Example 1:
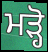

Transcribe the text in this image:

ਮੜ੍ਹੋ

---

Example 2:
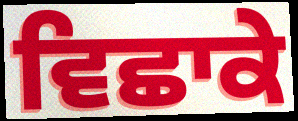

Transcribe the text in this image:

ਵਿਛਾਕੇ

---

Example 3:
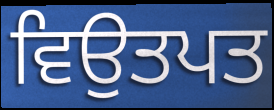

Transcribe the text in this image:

ਵਿਉਤਪਤ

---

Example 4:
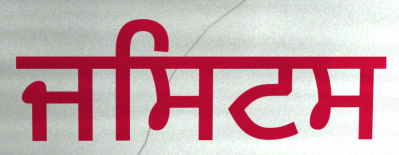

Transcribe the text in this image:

ਜਸਿਟਸ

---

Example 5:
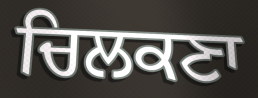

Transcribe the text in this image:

ਚਿਲਕਣਾ